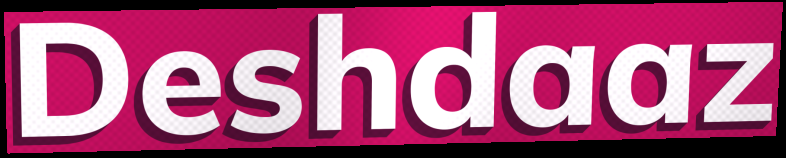
Deshdaaz